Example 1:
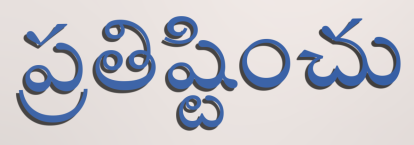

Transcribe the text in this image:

ప్రతిష్టించు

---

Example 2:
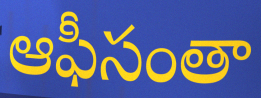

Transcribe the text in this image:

ఆఫీసంతా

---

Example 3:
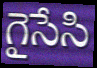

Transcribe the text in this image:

గైసేసి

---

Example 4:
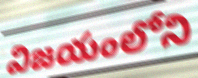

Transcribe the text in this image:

విజయంలోని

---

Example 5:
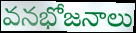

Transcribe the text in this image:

వనభోజనాలు